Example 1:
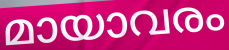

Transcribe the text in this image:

മായാവരം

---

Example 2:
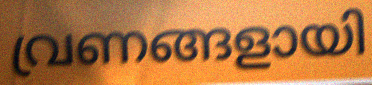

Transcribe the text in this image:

വ്രണങ്ങളായി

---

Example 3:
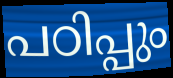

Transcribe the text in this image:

പഠിപ്പും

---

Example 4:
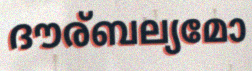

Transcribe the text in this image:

ദൗര്ബല്യമോ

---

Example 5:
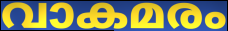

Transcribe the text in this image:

വാകമരം